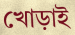
খোড়াই